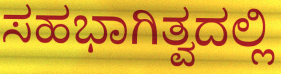
ಸಹಭಾಗಿತ್ವದಲ್ಲಿ